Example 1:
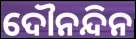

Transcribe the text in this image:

ଦୌନନ୍ଦିନ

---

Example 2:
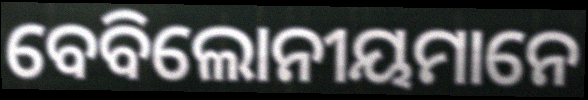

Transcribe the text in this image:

ବେବିଲୋନୀୟମାନେ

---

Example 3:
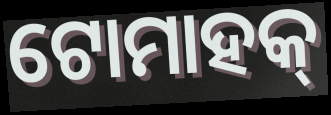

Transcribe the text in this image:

ଟୋମାହକ୍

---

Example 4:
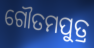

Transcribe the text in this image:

ଗୌତମପୁତ୍ର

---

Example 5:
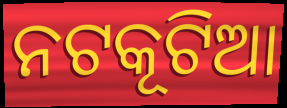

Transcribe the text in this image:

ନଟକୂଟିଆ